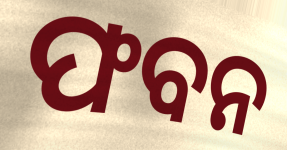
ଫବନ